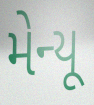
મેન્યૂ